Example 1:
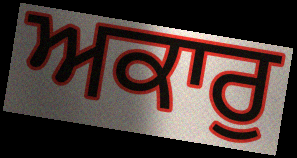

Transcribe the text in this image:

ਅਕਾਰੁ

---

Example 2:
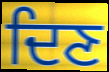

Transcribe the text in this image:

ਦਿਣ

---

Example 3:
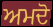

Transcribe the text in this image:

ਅਮਦੋ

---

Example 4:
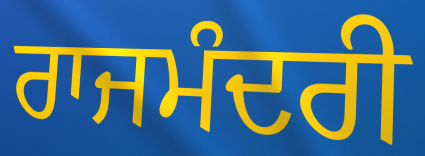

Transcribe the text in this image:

ਰਾਜਮੰਦਰੀ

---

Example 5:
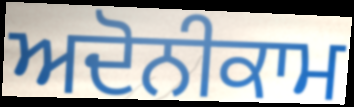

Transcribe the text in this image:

ਅਦੋਨੀਕਾਮ